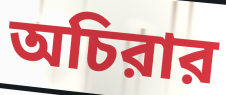
অচিরার